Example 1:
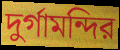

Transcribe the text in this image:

দুর্গামন্দির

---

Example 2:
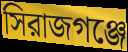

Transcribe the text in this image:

সিরাজগঞ্জে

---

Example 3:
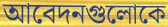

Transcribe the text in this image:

আবেদনগুলোকে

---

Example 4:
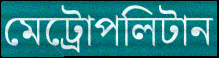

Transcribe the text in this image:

মেট্রোপলিটান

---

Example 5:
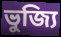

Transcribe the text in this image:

ভুজ্যি